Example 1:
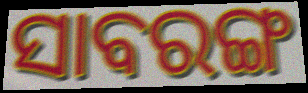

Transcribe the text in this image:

ସାବରଙ୍ଗ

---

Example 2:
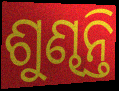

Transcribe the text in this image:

ଶୁଣ୍ଢନ୍ତି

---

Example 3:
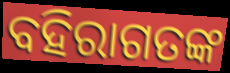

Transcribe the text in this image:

ବହିରାଗତଙ୍କ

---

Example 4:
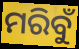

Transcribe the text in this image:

ମରିବୁଁ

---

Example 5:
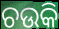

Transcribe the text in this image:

ଚଉକି